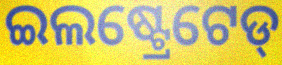
ଇଲଷ୍ଟ୍ରେଟେଡ୍